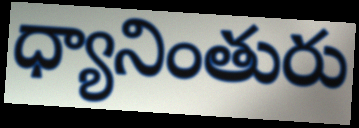
ధ్యానింతురు